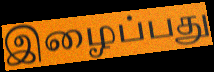
இழைப்பது